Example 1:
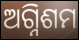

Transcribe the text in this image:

ଅଗ୍ନିଶମ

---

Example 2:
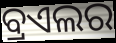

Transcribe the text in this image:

ବ୍ରଏଲର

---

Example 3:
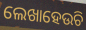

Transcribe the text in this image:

ଲେଖାହେଉଚି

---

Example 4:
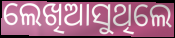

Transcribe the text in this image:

ଲେଖିଆସୁଥିଲେ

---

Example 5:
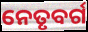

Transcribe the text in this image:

ନେତୃବର୍ଗ